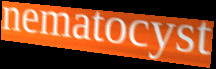
nematocyst